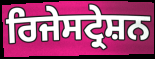
ਰਿਜੇਸਟ੍ਰੇਸ਼ਨ